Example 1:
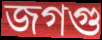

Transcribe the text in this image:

জগগু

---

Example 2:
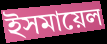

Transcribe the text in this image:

ইসমায়েল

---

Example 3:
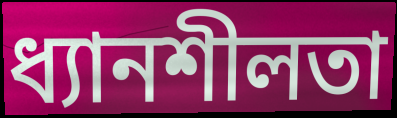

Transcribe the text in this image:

ধ্যানশীলতা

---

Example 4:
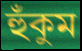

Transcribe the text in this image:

হুঁকুম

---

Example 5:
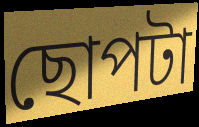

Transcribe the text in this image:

ছোপটা